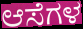
ಆಸೆಗಳ